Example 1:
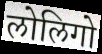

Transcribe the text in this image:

लोलिगो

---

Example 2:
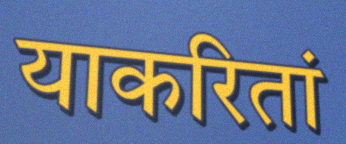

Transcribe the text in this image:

याकरितां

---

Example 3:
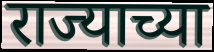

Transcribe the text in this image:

राज्याच्या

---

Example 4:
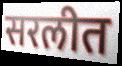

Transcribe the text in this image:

सरलीत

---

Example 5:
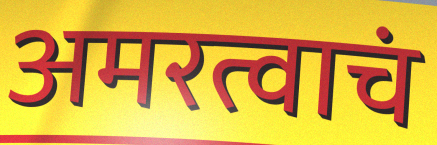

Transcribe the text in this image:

अमरत्वाचं